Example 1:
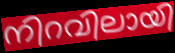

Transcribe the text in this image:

നിറവിലായി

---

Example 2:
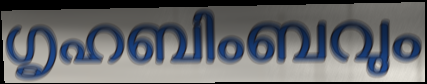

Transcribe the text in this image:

ഗൃഹബിംബവും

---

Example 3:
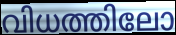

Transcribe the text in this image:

വിധത്തിലോ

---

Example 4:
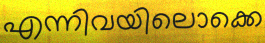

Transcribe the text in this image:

എന്നിവയിലൊക്കെ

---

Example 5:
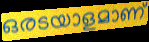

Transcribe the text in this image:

ഒരടയാളമാണ്